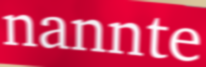
nannte